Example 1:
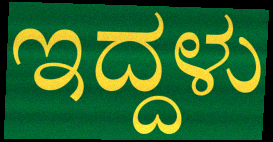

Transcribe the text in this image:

ಇದ್ದಳು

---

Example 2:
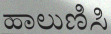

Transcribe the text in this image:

ಹಾಲುಣಿಸಿ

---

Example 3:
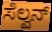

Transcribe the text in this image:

ಸೆಲ್ವನ್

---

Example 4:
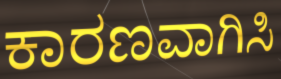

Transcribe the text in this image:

ಕಾರಣವಾಗಿಸಿ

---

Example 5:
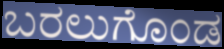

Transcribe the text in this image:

ಬರಲುಗೊಂಡ